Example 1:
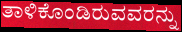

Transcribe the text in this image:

ತಾಳಿಕೊಂಡಿರುವವರನ್ನು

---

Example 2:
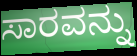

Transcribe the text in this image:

ಸಾರವನ್ನು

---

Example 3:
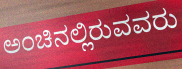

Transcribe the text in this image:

ಅಂಚಿನಲ್ಲಿರುವವರು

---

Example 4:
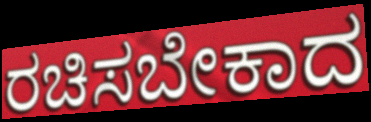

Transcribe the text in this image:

ರಚಿಸಬೇಕಾದ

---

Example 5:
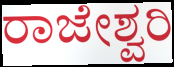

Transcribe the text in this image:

ರಾಜೇಶ್ವರಿ